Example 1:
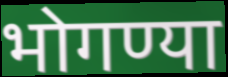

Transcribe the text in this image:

भोगण्या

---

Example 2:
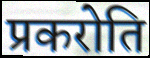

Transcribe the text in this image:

प्रकरोति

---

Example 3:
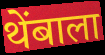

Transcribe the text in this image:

थेंबाला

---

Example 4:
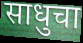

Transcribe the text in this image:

साधुचा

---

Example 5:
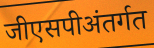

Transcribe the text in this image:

जीएसपीअंतर्गत